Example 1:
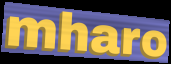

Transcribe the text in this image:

mharo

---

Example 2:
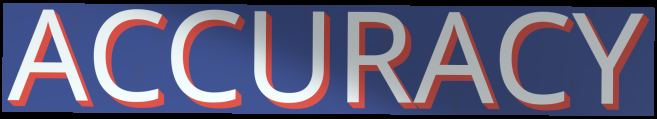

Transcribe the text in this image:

ACCURACY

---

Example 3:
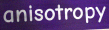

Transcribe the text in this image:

anisotropy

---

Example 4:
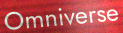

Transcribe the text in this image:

Omniverse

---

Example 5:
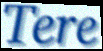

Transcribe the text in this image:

Tere